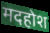
मदहोश